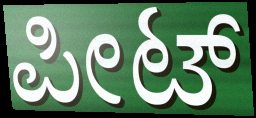
ಪೀಟ್